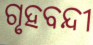
ଗୃହବନ୍ଦୀ